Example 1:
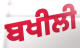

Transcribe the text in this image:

ਬਖੀਲੀ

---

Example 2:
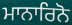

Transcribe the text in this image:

ਮਾਨਾਰਿਨੋ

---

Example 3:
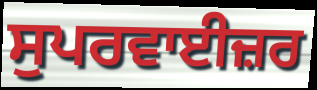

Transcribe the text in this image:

ਸੁਪਰਵਾਈਜ਼ਰ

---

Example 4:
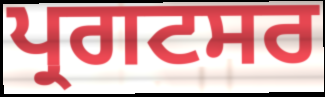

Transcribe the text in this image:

ਪ੍ਰਗਟਸਰ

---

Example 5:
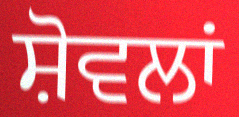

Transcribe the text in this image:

ਸ਼ੋਵਲਾਂ